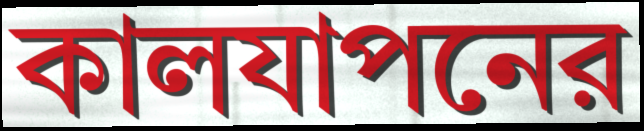
কালযাপনের